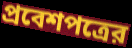
প্রবেশপত্রের